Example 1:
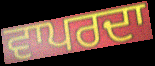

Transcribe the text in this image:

ਵਾਪਰਦਾ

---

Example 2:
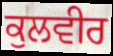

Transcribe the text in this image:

ਕੁਲਵੀਰ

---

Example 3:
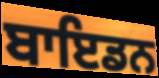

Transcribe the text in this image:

ਬਾਇਡਨ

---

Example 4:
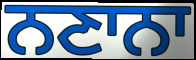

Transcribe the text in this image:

ਨਣਾਨਾ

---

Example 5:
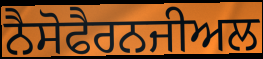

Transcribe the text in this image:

ਨੈਸੋਫੈਰਨਜੀਅਲ